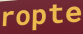
ropte